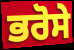
ਭਰੋਸੇ